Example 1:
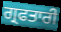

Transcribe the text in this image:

ਗ੍ਰਫਤਾਰੀ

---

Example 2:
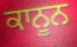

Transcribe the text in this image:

ਕਾਨੂਨ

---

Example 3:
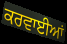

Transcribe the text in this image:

ਕਰਵਾਈਆਂ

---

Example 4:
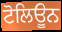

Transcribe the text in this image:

ਟੋਲਿਊਨ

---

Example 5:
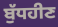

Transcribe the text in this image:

ਬੁੱਧਹੀਣ